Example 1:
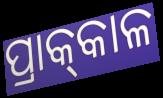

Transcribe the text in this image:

ପ୍ରାକ୍‌କାଳ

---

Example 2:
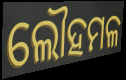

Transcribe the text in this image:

ଲୌହମଳ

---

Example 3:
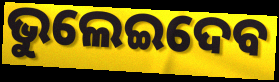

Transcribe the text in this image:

ଭୁଲେଇଦେବ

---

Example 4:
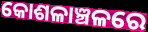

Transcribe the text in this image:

କୋଶଳାଞ୍ଚଳରେ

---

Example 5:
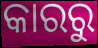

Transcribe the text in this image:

କାରରୁ